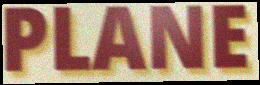
PLANE